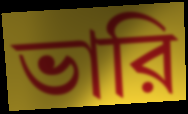
ভারি